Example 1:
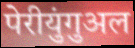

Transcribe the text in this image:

पेरीयुंगुअल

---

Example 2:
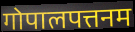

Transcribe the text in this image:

गोपालपत्तनम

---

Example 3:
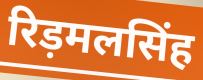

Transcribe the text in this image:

रिड़मलसिंह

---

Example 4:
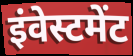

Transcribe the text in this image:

इंवेस्टमेंट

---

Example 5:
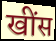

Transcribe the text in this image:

खींस